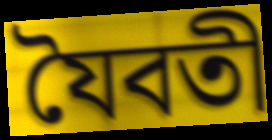
যৈবতী